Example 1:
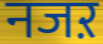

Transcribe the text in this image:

नजऱ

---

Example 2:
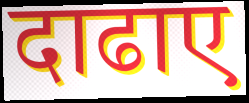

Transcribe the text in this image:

दाढाए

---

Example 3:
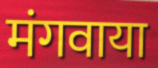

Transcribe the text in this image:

मंगवाया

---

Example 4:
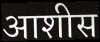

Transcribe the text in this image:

आशीस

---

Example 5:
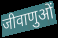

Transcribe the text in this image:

जीवाणुओं